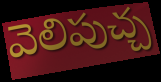
వెలిపుచ్చ